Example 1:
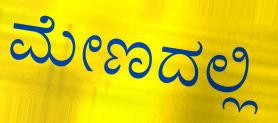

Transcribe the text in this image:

ಮೇಣದಲ್ಲಿ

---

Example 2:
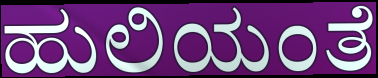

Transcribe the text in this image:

ಹುಲಿಯಂತೆ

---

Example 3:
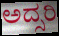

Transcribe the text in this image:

ಅದ್ಸರಿ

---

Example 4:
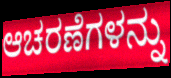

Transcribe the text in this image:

ಆಚರಣೆಗಳನ್ನು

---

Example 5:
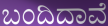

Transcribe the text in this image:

ಬಂದಿದಾವೆ